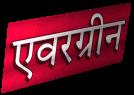
एवरग्रीन